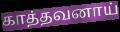
காத்தவனாய்